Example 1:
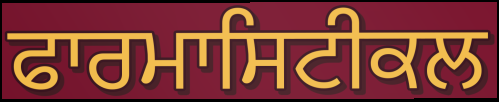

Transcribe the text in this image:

ਫਾਰਮਾਸਿਟੀਕਲ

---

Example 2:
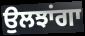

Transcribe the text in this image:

ਉਲਝਾਂਗਾ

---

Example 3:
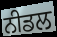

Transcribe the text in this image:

ਨੀਡਲ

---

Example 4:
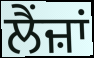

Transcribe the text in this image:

ਲੈਂਜ਼ਾਂ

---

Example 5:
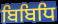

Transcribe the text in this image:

ਬਿਬਿਧਿ